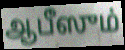
ஆபீஸும்